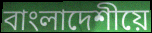
বাংলাদেশীয়ে